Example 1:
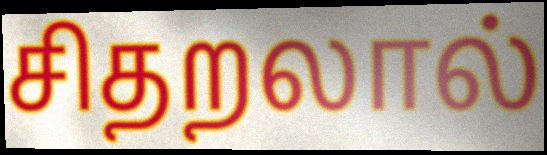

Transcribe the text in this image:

சிதறலால்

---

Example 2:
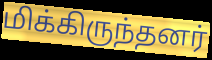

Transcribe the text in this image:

மிக்கிருந்தனர்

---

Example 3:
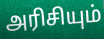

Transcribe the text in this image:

அரிசியும்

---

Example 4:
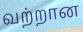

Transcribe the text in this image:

வற்றான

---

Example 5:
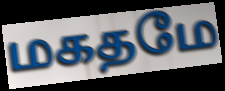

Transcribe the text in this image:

மகதமே